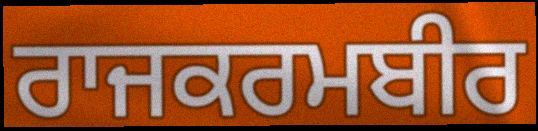
ਰਾਜਕਰਮਬੀਰ